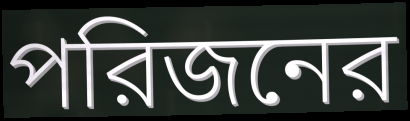
পরিজনের